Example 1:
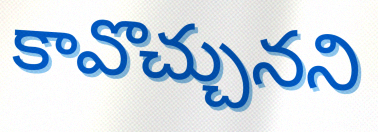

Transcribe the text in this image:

కావొచ్చునని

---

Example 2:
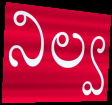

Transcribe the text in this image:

నిల్వ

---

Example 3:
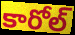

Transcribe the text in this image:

కారోల్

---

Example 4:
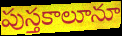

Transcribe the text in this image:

పుస్తకాలూనూ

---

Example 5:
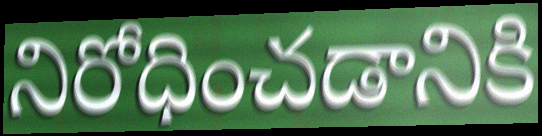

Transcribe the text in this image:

నిరోధించడానికి